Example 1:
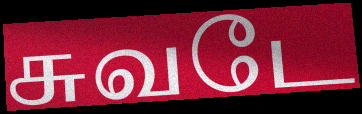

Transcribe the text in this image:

சுவடே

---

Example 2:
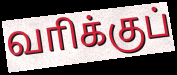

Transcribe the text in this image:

வரிக்குப்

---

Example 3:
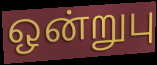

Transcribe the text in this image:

ஒன்றுபு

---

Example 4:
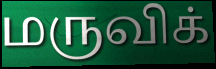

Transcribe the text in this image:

மருவிக்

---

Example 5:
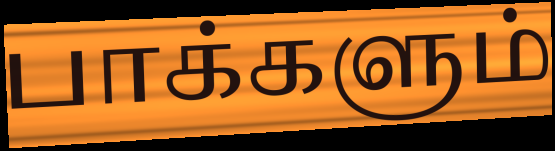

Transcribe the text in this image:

பாக்களும்